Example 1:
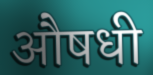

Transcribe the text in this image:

औषधी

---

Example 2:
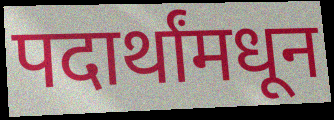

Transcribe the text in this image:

पदार्थांमधून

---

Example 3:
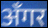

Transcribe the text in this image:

अँगर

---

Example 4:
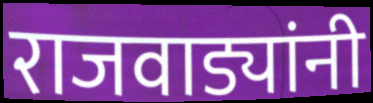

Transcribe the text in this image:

राजवाड्यांनी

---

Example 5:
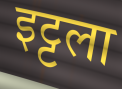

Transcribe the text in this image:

इट्टला